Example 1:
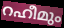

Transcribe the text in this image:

റഹീമും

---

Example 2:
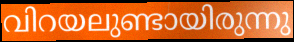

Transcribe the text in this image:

വിറയലുണ്ടായിരുന്നു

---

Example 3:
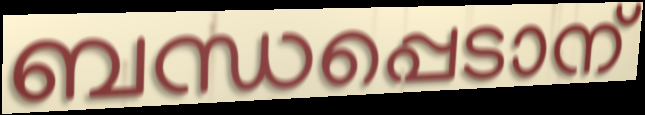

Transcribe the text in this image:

ബന്ധപ്പെടാന്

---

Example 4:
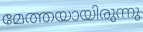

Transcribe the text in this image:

മേത്തയായിരുന്നു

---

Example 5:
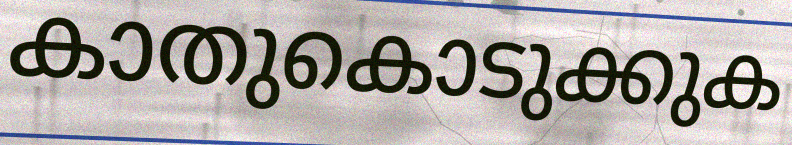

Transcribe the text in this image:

കാതുകൊടുക്കുക